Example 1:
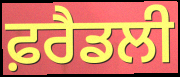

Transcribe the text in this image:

ਫ਼ਰੈਡਲੀ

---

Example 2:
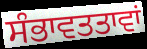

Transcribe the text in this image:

ਸੰਭਾਵਤਤਾਵਾਂ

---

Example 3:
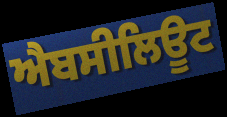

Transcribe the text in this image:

ਐਬਸੀਲਿਊਟ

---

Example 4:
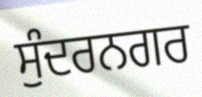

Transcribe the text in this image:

ਸੁੰਦਰਨਗਰ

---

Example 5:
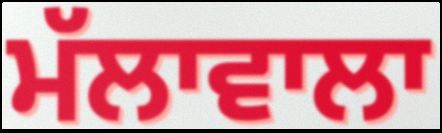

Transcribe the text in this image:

ਮੱਲਾਵਾਲਾ